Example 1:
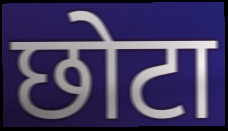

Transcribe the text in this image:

छोटा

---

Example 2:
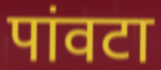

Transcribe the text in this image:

पांवटा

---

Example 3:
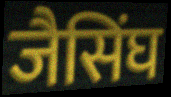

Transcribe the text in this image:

जैसिंघ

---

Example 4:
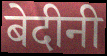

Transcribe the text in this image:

बेदीनी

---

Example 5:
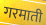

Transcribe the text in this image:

गरमाती